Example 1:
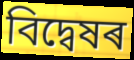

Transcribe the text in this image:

বিদ্বেষৰ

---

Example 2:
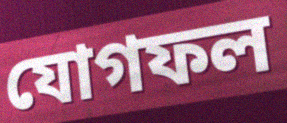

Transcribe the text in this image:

যোগফল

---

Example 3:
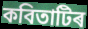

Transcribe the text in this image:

কবিতাটিৰ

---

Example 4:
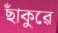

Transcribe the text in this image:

ছাঁকুৱে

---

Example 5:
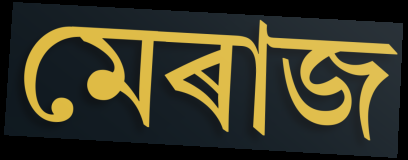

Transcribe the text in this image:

মেৰাজ